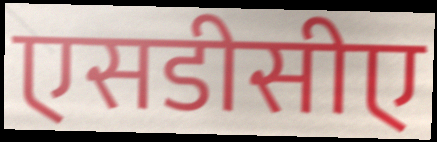
एसडीसीए